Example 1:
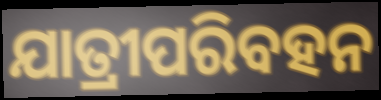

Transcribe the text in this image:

ଯାତ୍ରୀପରିବହନ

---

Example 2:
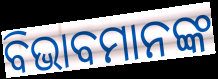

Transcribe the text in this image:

ବିଭାବମାନଙ୍କ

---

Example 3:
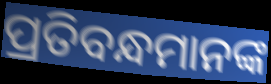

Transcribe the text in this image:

ପ୍ରତିବନ୍ଧମାନଙ୍କ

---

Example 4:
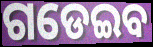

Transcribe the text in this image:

ଗଡେଇବ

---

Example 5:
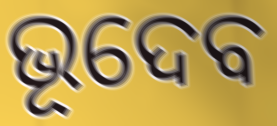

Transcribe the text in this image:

ଭୂଦେବ